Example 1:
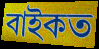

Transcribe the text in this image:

বাইকত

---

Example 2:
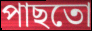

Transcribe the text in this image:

পাছতো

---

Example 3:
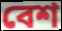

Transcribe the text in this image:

বেশ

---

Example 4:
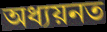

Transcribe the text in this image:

অধ্য়য়নত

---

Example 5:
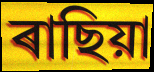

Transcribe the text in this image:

ৰাছিয়া